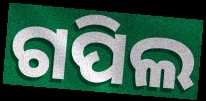
ଗପିଲ